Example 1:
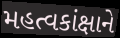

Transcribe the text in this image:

મહત્વકાંક્ષાને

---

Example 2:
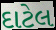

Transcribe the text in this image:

દાટેલ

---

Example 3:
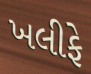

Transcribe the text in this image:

ખલીફે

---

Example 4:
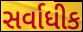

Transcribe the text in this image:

સર્વાધીક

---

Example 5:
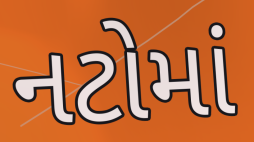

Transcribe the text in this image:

નટોમાં